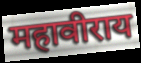
महावीराय